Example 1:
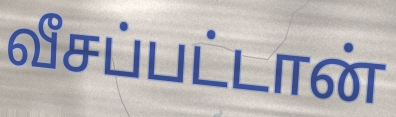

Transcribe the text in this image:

வீசப்பட்டான்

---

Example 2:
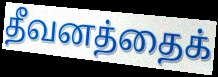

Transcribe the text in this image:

தீவனத்தைக்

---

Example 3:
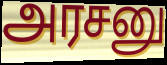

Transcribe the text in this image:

அரசனு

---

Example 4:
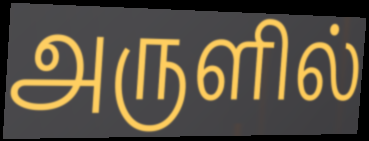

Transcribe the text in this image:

அருளில்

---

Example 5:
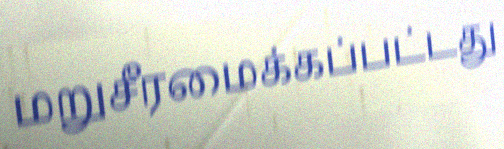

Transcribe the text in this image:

மறுசீரமைக்கப்பட்டது